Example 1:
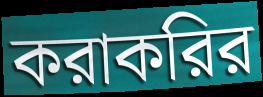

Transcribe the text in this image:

করাকরির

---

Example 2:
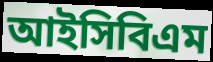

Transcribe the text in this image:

আইসিবিএম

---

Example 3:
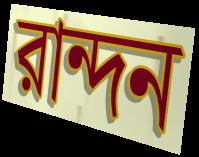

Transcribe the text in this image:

রান্দন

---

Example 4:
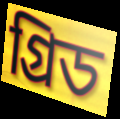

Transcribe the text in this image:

গ্রিড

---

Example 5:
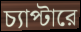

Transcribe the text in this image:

চ্যাপ্টারে